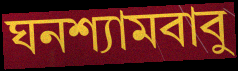
ঘনশ্যামবাবু